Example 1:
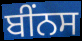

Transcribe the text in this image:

ਬੀਂਨਸ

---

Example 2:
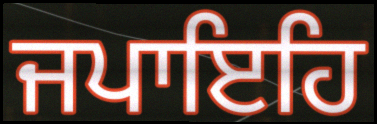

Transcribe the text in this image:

ਜਪਾਇਹਿ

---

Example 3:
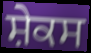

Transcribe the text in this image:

ਸ਼ੇਕਸ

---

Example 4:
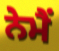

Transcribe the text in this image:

ਨੇਮੈਂ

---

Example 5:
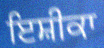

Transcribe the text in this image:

ਇਸ਼ੀਕਾ